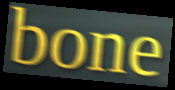
bone